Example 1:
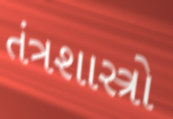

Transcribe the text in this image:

તંત્રશાસ્ત્રો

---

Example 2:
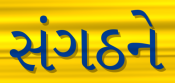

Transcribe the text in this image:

સંગઠને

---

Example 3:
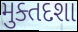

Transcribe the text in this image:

મુક્તદશા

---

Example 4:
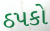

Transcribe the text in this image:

ઠપકો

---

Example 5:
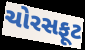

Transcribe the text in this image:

ચોરસફૂટ